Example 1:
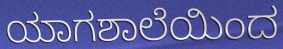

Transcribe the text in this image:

ಯಾಗಶಾಲೆಯಿಂದ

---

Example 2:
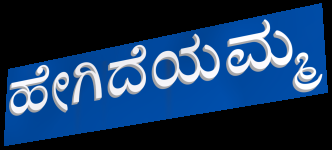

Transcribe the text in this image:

ಹೇಗಿದೆಯಮ್ಮ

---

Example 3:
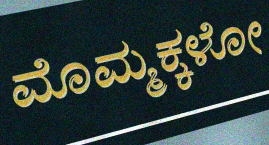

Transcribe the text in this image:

ಮೊಮ್ಮಕ್ಕಳೋ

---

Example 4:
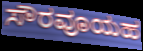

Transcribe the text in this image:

ಸೌರವೂಯಹ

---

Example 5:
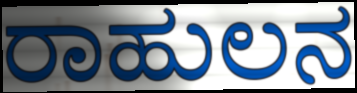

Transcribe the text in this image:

ರಾಹುಲನ